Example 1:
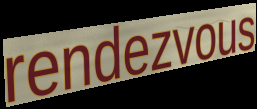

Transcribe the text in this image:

rendezvous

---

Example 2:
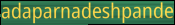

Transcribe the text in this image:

adaparnadeshpande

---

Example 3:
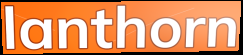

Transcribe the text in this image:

lanthorn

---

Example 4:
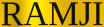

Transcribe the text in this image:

RAMJI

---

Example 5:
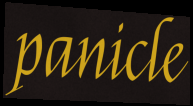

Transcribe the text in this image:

panicle